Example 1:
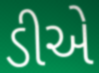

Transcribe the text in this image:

ડીએ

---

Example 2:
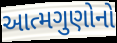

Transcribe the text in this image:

આત્મગુણોનો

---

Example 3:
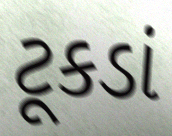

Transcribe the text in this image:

ટૂકડાં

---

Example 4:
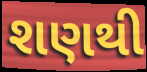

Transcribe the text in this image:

શણથી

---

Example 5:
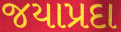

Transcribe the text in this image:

જયાપ્રદા